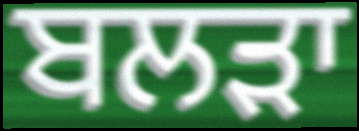
ਬਲੜਾ